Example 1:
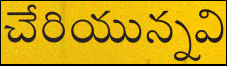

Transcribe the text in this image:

చేరియున్నవి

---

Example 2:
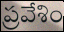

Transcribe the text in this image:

ప్రవేశిం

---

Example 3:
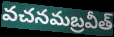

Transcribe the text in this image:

వచనమబ్రవీత్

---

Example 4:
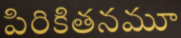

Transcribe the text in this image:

పిరికితనమూ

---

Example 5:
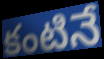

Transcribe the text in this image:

కంటినే